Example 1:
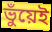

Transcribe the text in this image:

ভুঁয়েই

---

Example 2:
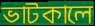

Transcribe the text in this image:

ভাটকালে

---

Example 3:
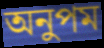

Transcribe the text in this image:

অনুপম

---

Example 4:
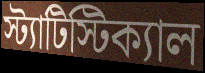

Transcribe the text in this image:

স্ট্যাটিস্টিক্যাল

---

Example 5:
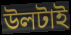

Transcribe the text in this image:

উলটাই